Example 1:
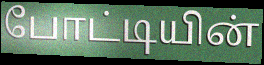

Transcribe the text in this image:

போட்டியின்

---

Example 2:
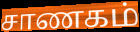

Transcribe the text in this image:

சாணகம்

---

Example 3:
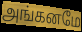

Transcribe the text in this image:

அங்கனமே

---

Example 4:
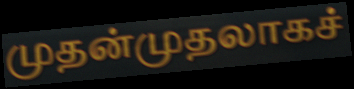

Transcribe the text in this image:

முதன்முதலாகச்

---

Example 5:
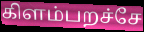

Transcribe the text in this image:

கிளம்பறச்சே